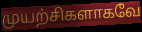
முயற்சிகளாகவே